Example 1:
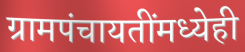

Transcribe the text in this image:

ग्रामपंचायतींमध्येही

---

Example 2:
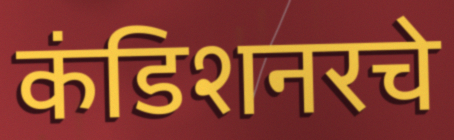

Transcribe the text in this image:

कंडिशनरचे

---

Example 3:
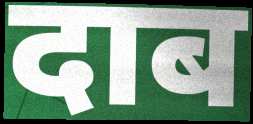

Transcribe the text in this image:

दाब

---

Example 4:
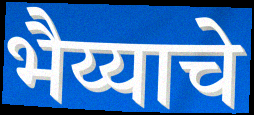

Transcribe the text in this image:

भैय्याचे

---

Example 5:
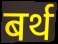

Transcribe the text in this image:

बर्थ